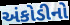
અંકોડીનો